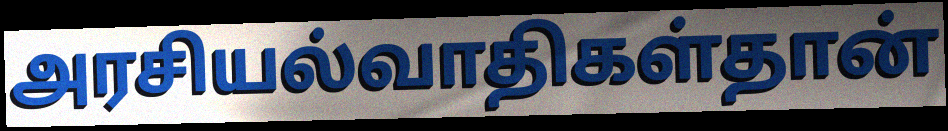
அரசியல்வாதிகள்தான்